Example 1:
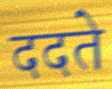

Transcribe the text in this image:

ददते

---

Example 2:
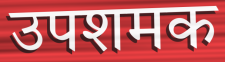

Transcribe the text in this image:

उपशमक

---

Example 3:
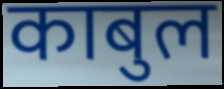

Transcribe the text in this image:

काबुल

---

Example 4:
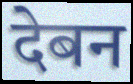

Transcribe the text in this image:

देबन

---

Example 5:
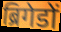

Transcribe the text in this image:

ब्रिगेडों